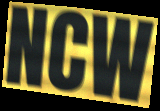
NCW